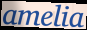
amelia